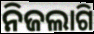
ନିଜଲାଗି